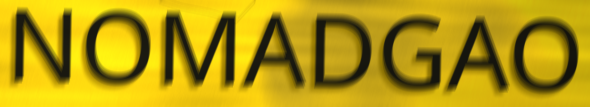
NOMADGAO